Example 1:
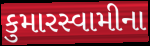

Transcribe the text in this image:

કુમારસ્વામીના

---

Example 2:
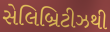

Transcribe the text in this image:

સેલિબ્રિટીઝથી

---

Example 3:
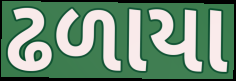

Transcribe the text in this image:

ઢળાયા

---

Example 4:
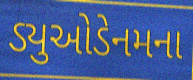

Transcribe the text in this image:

ડ્યુઓડેનમના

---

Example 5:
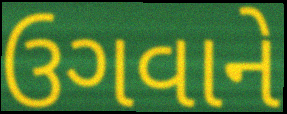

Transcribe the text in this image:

ઉગવાને